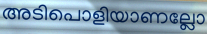
അടിപൊളിയാണല്ലോ